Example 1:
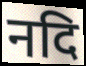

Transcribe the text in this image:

नदि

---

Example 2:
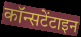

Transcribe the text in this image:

कॉन्सटेंटाइन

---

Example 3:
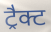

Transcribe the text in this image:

ट्रैक्ट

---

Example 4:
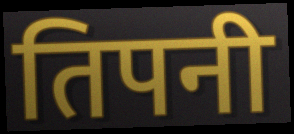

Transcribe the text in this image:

तिपनी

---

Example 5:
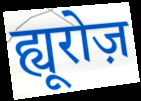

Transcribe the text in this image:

ह्यूरोज़